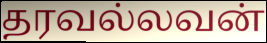
தரவல்லவன்